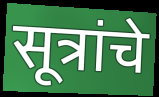
सूत्रांचे